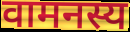
वामनस्य